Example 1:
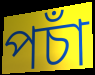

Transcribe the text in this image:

পচাঁ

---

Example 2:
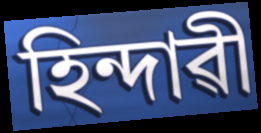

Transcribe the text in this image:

হিন্দাৱী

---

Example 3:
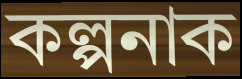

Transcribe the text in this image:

কল্পনাক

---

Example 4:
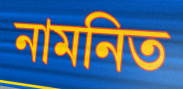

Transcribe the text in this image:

নামনিত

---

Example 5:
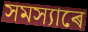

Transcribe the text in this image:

সমস্যাৰে